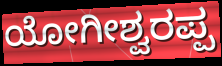
ಯೋಗೀಶ್ವರಪ್ಪ